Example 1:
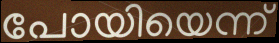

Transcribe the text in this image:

പോയിയെന്ന്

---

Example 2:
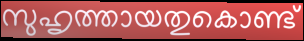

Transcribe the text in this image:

സുഹൃത്തായതുകൊണ്ട്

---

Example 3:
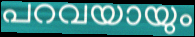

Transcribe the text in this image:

പറവയായും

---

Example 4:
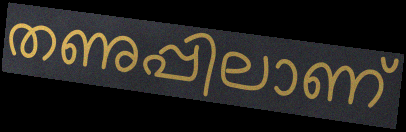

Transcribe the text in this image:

തണുപ്പിലാണ്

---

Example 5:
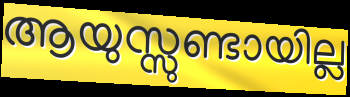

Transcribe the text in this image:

ആയുസ്സുണ്ടായില്ല